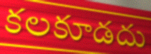
కలకూడదు